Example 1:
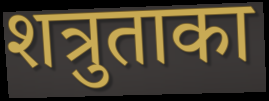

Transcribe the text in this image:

शत्रुताका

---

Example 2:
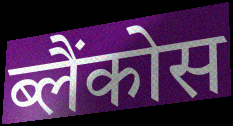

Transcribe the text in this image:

ब्लैंकोस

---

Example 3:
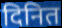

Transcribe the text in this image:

दिनित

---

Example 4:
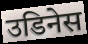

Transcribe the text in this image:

उडिनेस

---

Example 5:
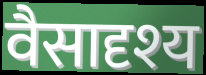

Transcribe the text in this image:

वैसादृश्य